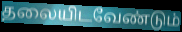
தலையிடவேண்டும்